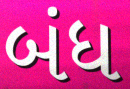
બંધ